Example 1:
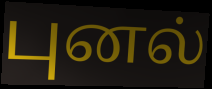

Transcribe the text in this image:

புனல்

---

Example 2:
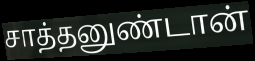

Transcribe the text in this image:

சாத்தனுண்டான்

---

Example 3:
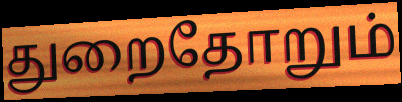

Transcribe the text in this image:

துறைதோறும்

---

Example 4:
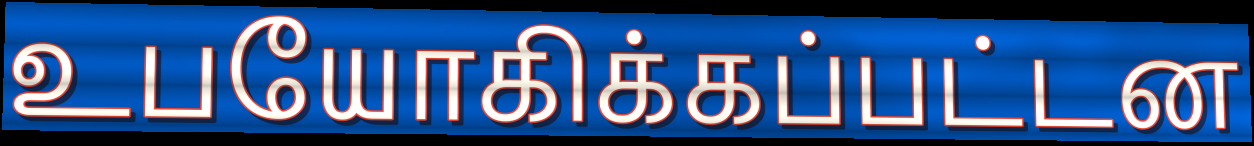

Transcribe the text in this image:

உபயோகிக்கப்பட்டன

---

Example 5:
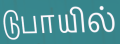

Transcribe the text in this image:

டுபாயில்